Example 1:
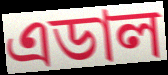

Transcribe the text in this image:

এডাল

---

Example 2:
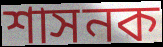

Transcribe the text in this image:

শাসনক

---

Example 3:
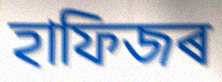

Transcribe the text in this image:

হাফিজৰ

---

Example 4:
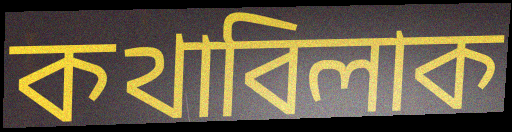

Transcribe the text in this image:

কথাবিলাক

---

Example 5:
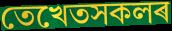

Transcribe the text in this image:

তেখেতসকলৰ